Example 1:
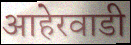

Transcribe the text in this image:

आहेरवाडी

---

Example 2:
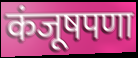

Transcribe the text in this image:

कंजूषपणा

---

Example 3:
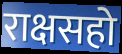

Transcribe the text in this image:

राक्षसहो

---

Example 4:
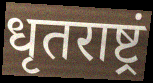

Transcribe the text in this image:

धृतराष्ट्रं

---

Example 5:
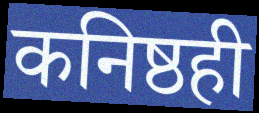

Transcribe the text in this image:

कनिष्ठही